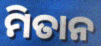
ମିତାନ